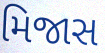
મિજાસ